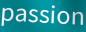
passion